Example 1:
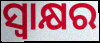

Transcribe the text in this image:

ସ୍ଵାକ୍ଷର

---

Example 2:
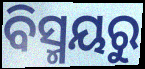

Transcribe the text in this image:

ବିସ୍ମୟରୁ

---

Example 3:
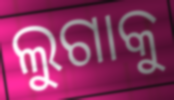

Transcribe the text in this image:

ଲୁଗାକୁ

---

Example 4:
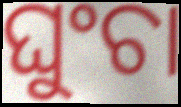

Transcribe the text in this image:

ଘୁଂଚା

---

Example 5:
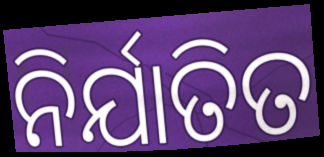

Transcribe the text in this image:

ନିର୍ଯାତିତ